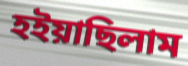
হইয়াছিলাম